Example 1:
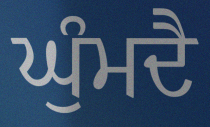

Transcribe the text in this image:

ਘੁੰਮਦੈ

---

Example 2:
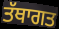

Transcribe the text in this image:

ਤੱਥਾਗਤ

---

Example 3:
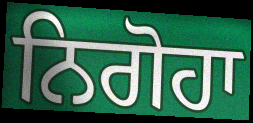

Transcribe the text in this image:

ਨਿਗੋਹਾ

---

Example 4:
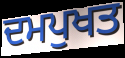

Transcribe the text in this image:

ਦਮਪੁਖਤ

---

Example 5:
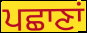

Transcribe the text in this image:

ਪਛਾਣਾਂ